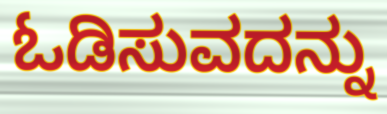
ಓಡಿಸುವದನ್ನು